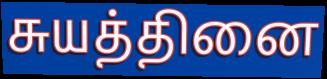
சுயத்தினை